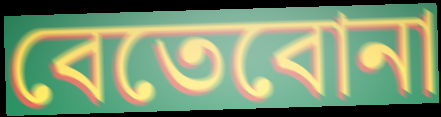
বেতেবোনা